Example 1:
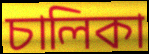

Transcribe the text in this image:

চালিকা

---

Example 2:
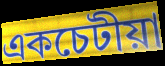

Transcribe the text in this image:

একচেটীয়া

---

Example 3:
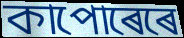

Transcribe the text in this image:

কাপোৰেৰে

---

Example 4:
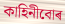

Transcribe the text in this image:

কাহিনীবোৰ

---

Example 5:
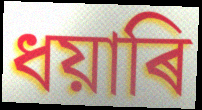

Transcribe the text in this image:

ধয়াৰি